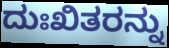
ದುಃಖಿತರನ್ನು